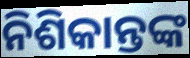
ନିଶିକାନ୍ତଙ୍କ